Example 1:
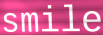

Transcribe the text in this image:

smile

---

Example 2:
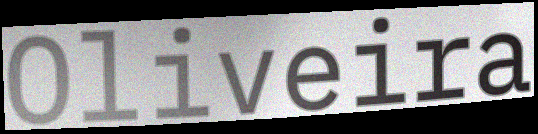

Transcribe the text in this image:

Oliveira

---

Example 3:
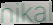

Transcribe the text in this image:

nikal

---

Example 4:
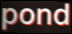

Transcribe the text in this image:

pond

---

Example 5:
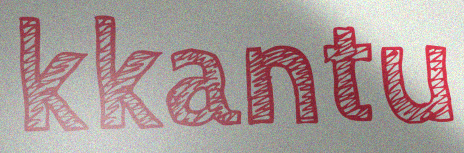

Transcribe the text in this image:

kkantu